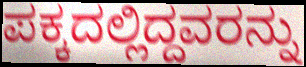
ಪಕ್ಕದಲ್ಲಿದ್ದವರನ್ನು